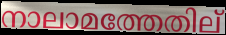
നാലാമത്തേതില്